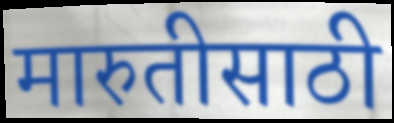
मारुतीसाठी